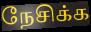
நேசிக்க